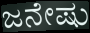
ಜನೇಷು